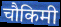
चौकिमी